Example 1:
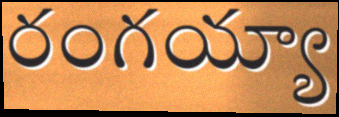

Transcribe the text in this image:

రంగయ్యా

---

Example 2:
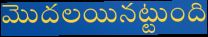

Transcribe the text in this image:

మొదలయినట్టుంది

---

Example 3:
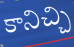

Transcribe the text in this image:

కానిచ్చి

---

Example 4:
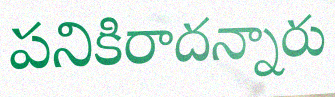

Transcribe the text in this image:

పనికిరాదన్నారు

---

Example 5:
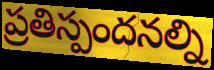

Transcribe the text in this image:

ప్రతిస్పందనల్ని